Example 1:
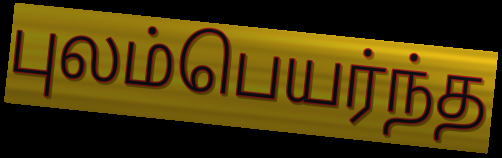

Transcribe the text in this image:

புலம்பெயர்ந்த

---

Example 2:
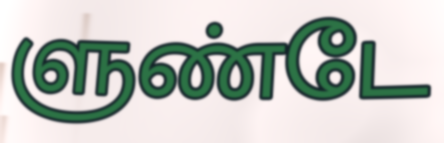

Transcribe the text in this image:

ளுண்டே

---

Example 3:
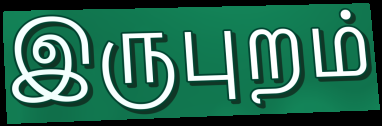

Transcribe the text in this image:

இருபுறம்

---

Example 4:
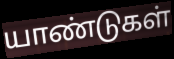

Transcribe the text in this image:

யாண்டுகள்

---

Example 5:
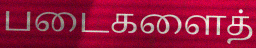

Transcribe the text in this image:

படைகளைத்